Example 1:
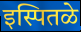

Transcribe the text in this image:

इस्पितळे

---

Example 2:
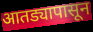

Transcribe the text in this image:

आतड्यापासून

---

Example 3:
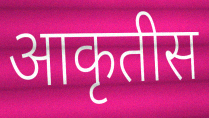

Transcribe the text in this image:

आकृतीस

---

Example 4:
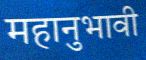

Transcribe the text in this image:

महानुभावी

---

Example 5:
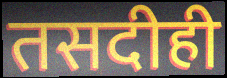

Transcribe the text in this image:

तसदीही